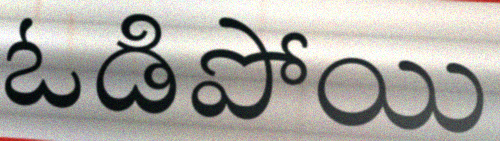
ఓడిపోయి